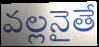
వల్లనైతే